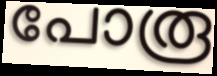
പോരൂ